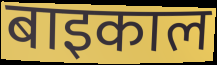
बाइकाल